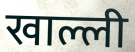
खाल्ली